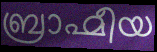
ബ്രാഹ്മീയ